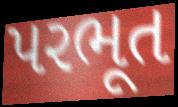
પરભૂત